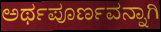
ಅರ್ಥಪೂರ್ಣವನ್ನಾಗಿ